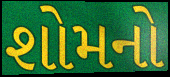
શોમનો